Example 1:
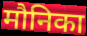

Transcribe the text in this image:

मौनिका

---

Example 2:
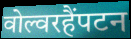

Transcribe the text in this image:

वोल्वरहैंपटन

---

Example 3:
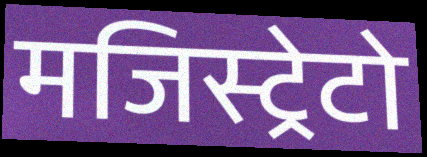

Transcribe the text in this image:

मजिस्ट्रेटो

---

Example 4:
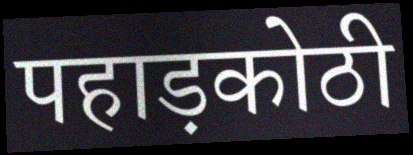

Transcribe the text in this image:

पहाड़कोठी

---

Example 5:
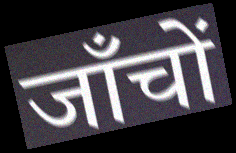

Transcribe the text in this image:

जाँचों